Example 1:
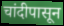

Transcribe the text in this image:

चांदीपासून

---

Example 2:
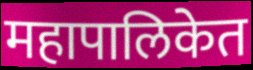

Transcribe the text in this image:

महापालिकेत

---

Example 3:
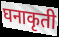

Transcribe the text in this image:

घनाकृती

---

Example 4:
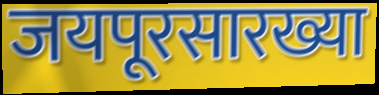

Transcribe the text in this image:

जयपूरसारख्या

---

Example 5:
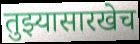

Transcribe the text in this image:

तुझ्यासारखेच